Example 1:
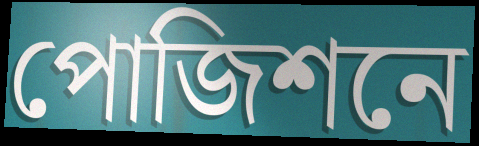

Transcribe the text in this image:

পোজিশনে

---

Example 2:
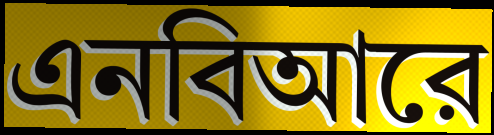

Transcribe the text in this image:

এনবিআরে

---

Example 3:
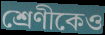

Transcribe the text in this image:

শ্রেণীকেও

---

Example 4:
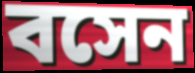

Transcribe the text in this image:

বসেন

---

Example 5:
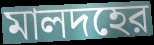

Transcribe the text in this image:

মালদহের